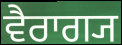
ਵੈਰਾਗ੍ਯ